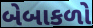
બેબાકળો